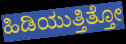
ಹಿಡಿಯುತ್ತಿತ್ತೋ